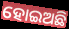
ହୋଇଅଛି